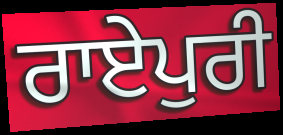
ਰਾਏਪੁਰੀ